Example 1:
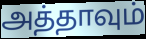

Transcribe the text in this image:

அத்தாவும்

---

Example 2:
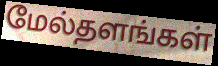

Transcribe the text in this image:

மேல்தளங்கள்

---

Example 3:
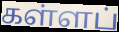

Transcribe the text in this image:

கள்ளப்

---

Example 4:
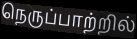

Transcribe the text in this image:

நெருப்பாற்றில்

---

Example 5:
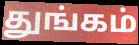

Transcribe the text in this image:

துங்கம்